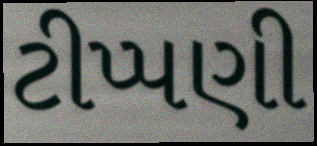
ટીપ્પણી